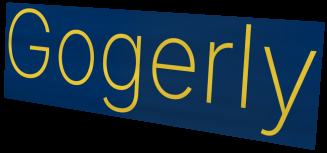
Gogerly